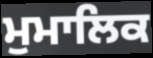
ਮੁਮਾਲਿਕ